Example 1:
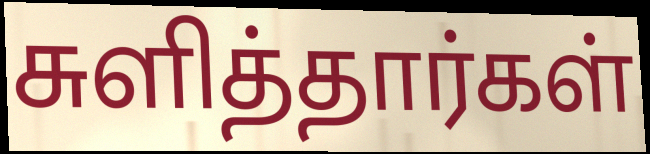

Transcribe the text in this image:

சுளித்தார்கள்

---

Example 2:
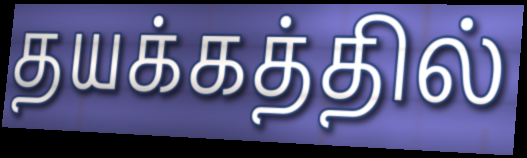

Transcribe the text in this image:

தயக்கத்தில்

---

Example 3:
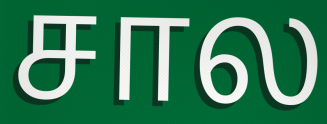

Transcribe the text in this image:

சால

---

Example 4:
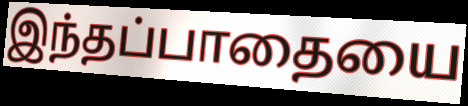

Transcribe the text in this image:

இந்தப்பாதையை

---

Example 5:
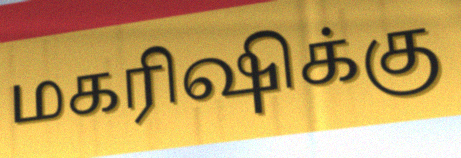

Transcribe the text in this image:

மகரிஷிக்கு